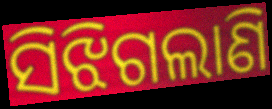
ସିଝିଗଲାଣି